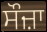
ਸੌਜ਼ਾ